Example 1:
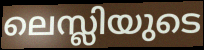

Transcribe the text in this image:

ലെസ്ലിയുടെ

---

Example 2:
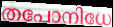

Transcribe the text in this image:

തപോനിധേ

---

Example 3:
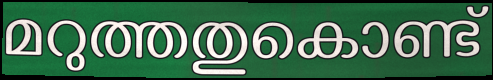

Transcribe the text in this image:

മറുത്തതുകൊണ്ട്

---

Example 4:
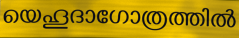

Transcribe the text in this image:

യെഹൂദാഗോത്രത്തിൽ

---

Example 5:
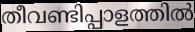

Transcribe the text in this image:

തീവണ്ടിപ്പാളത്തിൽ